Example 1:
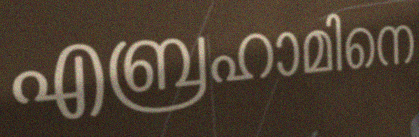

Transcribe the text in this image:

എബ്രഹാമിനെ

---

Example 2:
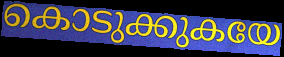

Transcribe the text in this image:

കൊടുക്കുകയേ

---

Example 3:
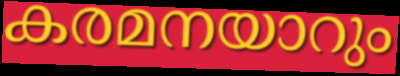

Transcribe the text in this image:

കരമനയാറും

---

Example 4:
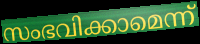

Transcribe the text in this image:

സംഭവിക്കാമെന്ന്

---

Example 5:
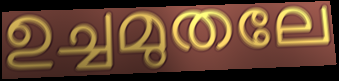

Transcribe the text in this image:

ഉച്ചമുതലേ